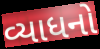
વ્યાધનો